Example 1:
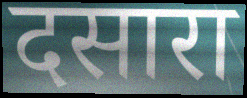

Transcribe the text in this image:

दसारा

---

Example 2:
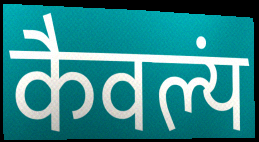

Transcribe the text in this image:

कैवल्यं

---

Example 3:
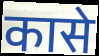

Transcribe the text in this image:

कासे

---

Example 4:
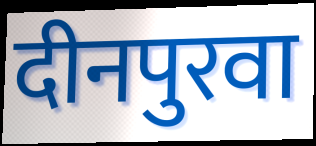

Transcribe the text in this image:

दीनपुरवा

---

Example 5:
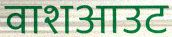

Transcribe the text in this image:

वाशआउट